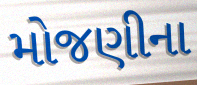
મોજણીના